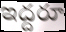
ఇద్దరూ